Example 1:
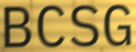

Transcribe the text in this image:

BCSG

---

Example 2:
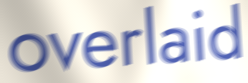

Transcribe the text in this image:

overlaid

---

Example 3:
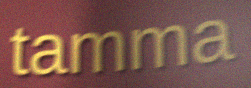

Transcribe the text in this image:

tamma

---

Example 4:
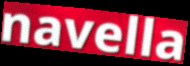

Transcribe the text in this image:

navella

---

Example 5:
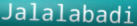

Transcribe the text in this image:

Jalalabadi